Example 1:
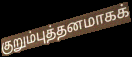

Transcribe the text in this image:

குறும்புத்தனமாகக்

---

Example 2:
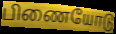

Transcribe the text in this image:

பிணையோடு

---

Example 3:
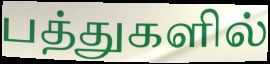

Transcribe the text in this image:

பத்துகளில்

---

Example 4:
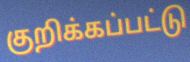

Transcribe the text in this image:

குறிக்கப்பட்டு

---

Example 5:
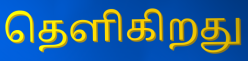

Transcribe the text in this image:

தெளிகிறது